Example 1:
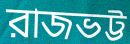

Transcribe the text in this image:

রাজভট্ট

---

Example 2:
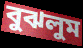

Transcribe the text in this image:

বুঝলুম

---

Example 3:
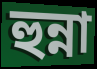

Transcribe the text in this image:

হুন্না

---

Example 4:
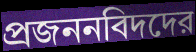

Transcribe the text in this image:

প্রজননবিদদের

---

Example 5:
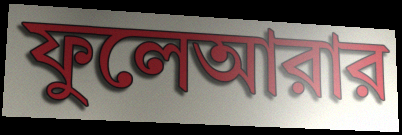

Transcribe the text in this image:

ফুলেআরার